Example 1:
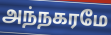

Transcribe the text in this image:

அந்நகரமே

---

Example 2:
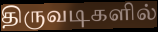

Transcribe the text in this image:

திருவடிகளில்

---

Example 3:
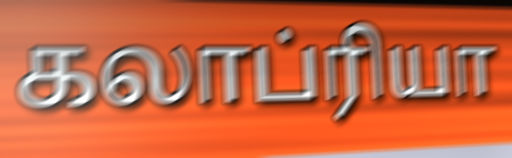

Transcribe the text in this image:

கலாப்ரியா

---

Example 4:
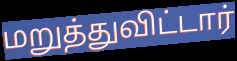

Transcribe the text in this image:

மறுத்துவிட்டார்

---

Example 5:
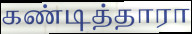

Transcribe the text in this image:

கண்டித்தாரா